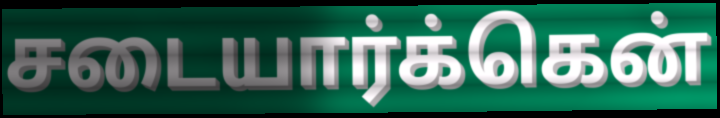
சடையார்க்கென்